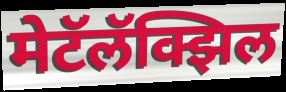
मेटॅलॅक्झिल